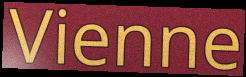
Vienne